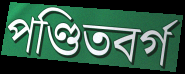
পণ্ডিতবর্গ